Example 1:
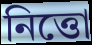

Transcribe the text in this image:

নিত্তো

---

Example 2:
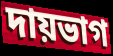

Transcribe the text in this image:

দায়ভাগ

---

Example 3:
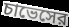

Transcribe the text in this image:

চাভেসের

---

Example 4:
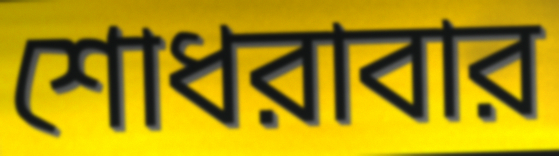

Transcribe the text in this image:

শোধরাবার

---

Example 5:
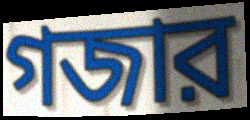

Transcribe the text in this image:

গজার